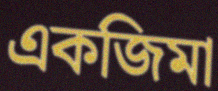
একজিমা